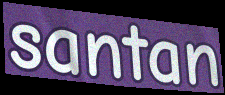
santan